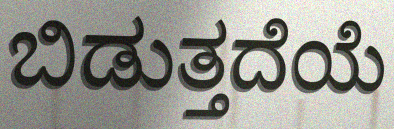
ಬಿಡುತ್ತದೆಯೆ